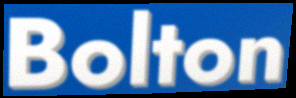
Bolton